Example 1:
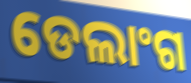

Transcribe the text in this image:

ଡେଲାଂଗ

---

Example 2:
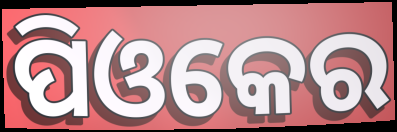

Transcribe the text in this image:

ପିଓକେର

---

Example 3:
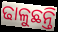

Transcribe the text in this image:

ଢାଳୁଛନ୍ତି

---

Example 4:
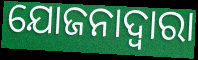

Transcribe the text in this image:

ଯୋଜନାଦ୍ବାରା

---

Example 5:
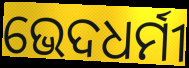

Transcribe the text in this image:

ଭେଦଧର୍ମୀ